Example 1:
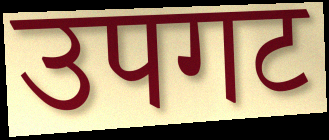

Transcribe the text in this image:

उपगट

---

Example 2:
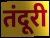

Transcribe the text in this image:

तंदूरी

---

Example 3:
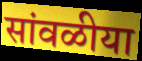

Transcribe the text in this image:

सांवळीया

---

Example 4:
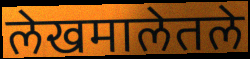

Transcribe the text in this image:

लेखमालेतले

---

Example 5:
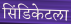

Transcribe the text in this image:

सिंडिकेटला